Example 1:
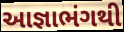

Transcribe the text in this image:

આજ્ઞાભંગથી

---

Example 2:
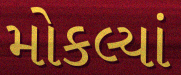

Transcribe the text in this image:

મોકલ્યાં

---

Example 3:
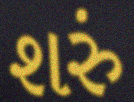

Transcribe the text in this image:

શરું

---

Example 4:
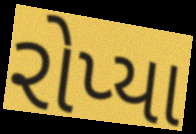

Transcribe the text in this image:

રોપ્યા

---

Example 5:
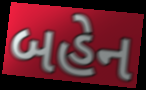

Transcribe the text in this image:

બહેન